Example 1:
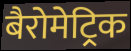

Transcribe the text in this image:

बैरोमेट्रिक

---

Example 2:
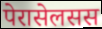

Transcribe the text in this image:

पेरासेलसस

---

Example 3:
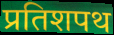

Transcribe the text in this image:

प्रतिशपथ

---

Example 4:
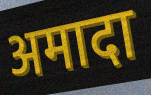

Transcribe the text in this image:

अमादा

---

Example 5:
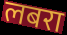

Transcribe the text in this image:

लबरा